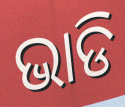
ଭାଡି